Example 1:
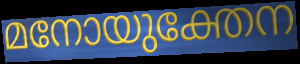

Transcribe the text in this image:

മനോയുക്തേന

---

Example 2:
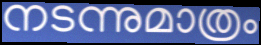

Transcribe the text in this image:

നടന്നുമാത്രം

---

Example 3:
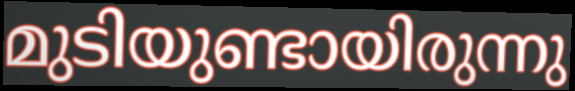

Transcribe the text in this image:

മുടിയുണ്ടായിരുന്നു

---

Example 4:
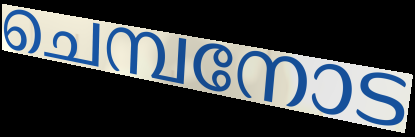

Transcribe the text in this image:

ചെമ്പനോട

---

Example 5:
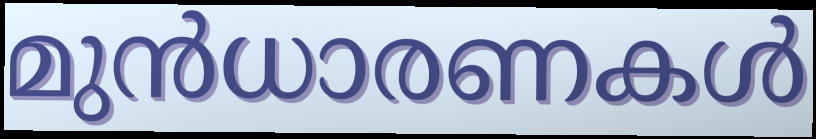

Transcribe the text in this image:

മുൻധാരണകൾ